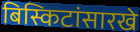
बिस्किटांसारखे